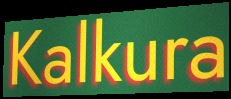
Kalkura